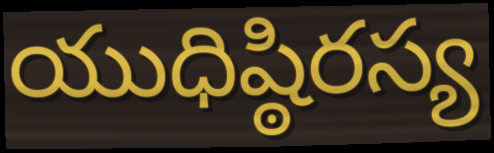
యుధిష్ఠిరస్య